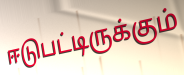
ஈடுபட்டிருக்கும்